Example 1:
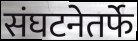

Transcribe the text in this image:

संघटनेतर्फे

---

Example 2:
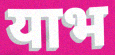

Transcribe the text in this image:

याभ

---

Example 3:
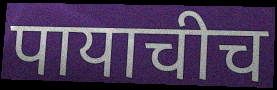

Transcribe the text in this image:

पायाचीच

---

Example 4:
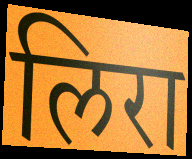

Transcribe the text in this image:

लिरा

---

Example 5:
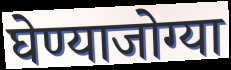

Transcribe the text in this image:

घेण्याजोग्या